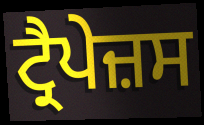
ਟ੍ਰੈਪੇਜ਼ਸ